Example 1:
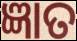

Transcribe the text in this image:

ଜ୍ଞାତ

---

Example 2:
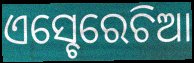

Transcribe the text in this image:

ଏସ୍ଚେରେଚିଆ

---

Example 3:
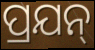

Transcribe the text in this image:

ପ୍ରଯନ୍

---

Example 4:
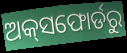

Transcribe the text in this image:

ଅକ୍‌ସଫୋର୍ଡରୁ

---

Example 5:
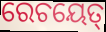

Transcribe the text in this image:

ରେଚୟେତ୍